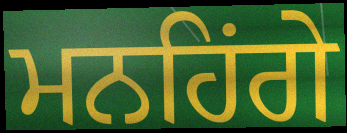
ਮਨਹਿਂਗੇ